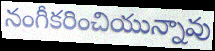
నంగీకరించియున్నావు